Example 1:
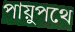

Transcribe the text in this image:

পায়ুপথে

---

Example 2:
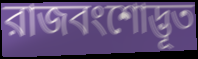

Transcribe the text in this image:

রাজবংশোদ্ভূত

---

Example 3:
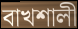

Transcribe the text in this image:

বাখশালী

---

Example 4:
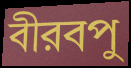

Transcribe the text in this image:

বীরবপু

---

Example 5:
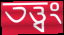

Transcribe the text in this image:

তত্ত্বং